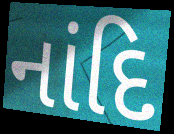
નાંદિ